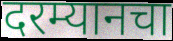
दरम्यानचा